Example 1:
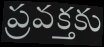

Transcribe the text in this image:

ప్రవక్తకు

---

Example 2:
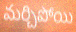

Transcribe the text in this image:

మర్చిపోయి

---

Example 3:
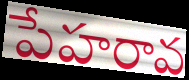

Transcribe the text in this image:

పేహరావ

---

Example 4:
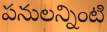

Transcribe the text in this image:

పనులన్నింటి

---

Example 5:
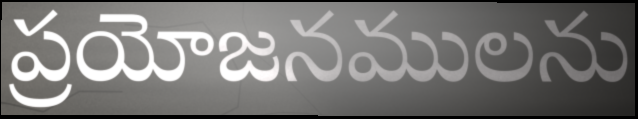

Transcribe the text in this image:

ప్రయోజనములను